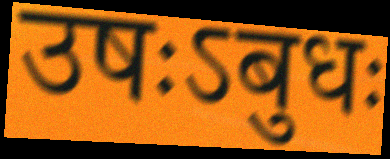
उषःऽबुधः